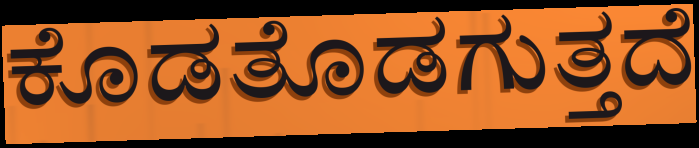
ಕೊಡತೊಡಗುತ್ತದೆ